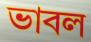
ভাবল